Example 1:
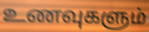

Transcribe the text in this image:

உணவுகளும்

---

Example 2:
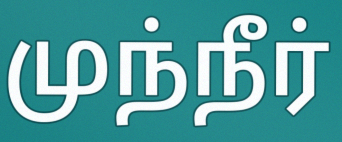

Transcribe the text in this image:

முந்நீர்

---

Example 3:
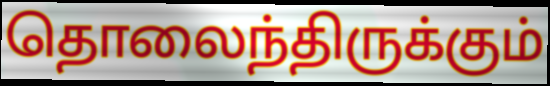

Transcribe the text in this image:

தொலைந்திருக்கும்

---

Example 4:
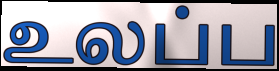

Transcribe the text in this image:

உலப்ப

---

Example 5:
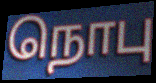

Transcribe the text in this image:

நொபு